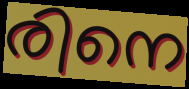
രിനെ